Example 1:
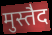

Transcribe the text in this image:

मुस्तैद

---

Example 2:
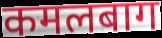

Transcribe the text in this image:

कमलबाग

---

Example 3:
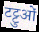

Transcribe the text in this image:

टट्टुओं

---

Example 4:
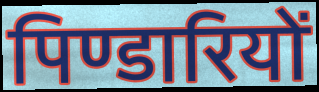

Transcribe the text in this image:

पिण्डारियों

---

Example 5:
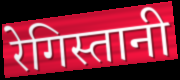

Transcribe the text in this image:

रेगिस्तानी